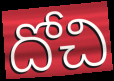
దోచి